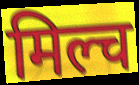
मिल्च